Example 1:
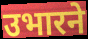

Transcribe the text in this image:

उभारने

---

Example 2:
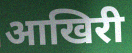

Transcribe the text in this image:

आखिरी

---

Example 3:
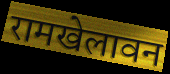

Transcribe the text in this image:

रामखेलावन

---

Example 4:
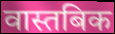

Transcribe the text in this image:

वास्तबिक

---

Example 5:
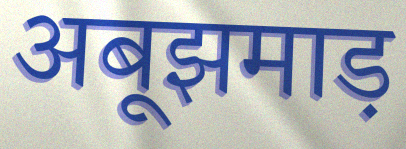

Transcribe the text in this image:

अबूझमाड़